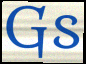
Gs